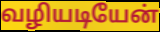
வழியடியேன்